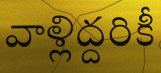
వాళ్లిద్దరికీ